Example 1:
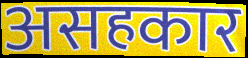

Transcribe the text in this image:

असहकार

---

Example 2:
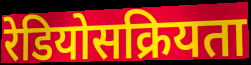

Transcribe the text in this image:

रेडियोसक्रियता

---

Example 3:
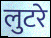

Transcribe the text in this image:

लुटरे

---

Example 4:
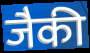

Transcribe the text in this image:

जैकी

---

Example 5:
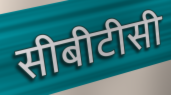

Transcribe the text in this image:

सीबीटीसी